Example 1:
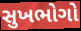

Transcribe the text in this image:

સુખભોગો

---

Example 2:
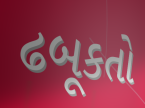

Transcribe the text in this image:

ઢબૂકતો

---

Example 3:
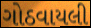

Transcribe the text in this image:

ગોઠવાયલી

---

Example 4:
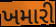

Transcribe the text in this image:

ખમારી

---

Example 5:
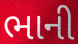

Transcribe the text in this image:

ભાની